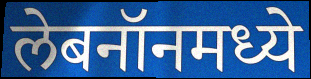
लेबनॉनमध्ये